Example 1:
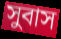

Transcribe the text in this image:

সুবাস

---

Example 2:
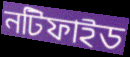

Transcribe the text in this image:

নটিফাইড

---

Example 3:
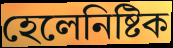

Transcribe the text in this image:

হেলেনিষ্টিক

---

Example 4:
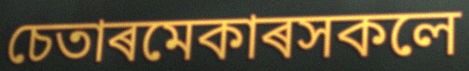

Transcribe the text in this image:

চেতাৰমেকাৰসকলে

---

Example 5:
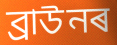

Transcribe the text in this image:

ব্ৰাউনৰ